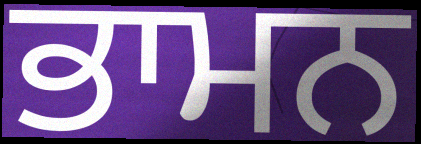
ਭਾਮਨ